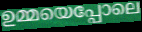
ഉമ്മയെപ്പോലെ